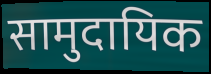
सामुदायिक